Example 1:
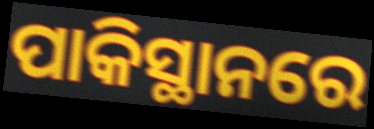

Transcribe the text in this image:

ପାକିସ୍ଥାନରେ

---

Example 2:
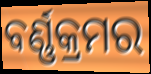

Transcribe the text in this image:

ବର୍ଣ୍ଣକ୍ରମର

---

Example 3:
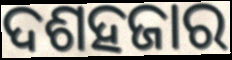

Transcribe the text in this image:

ଦଶହଜାର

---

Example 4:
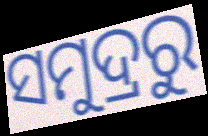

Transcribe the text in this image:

ସମୁଦ୍ରରୁ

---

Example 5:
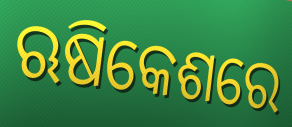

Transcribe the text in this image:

ଋଷିକେଶରେ